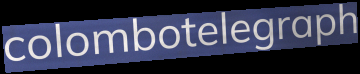
colombotelegraph